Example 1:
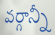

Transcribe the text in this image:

వర్గాన్నీ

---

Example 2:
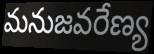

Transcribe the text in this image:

మనుజవరేణ్య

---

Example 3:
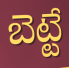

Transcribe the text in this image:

బెట్టే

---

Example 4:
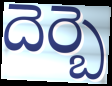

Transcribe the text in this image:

దెర్బె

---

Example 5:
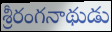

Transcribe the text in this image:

శ్రీరంగనాథుడు